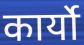
कार्यो